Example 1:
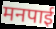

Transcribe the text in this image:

मनपाई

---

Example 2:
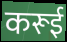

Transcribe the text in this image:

करूई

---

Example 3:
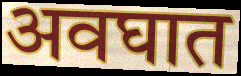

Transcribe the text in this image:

अवघात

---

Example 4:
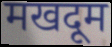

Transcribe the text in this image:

मखदूम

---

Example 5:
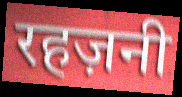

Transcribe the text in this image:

रहज़नी